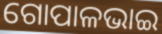
ଗୋପାଳଭାଇ